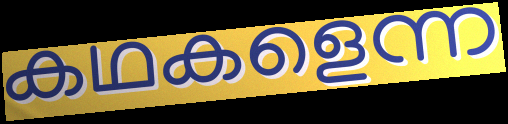
കഥകളെന്ന